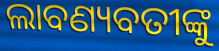
ଲାବଣ୍ୟବତୀଙ୍କୁ